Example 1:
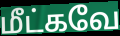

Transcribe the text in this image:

மீட்கவே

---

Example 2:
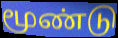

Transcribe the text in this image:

மூண்டு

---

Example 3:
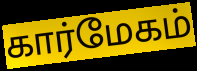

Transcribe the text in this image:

கார்மேகம்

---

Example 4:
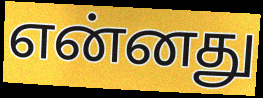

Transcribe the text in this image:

என்னது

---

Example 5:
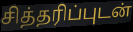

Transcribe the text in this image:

சித்தரிப்புடன்